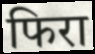
फिरा